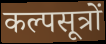
कल्पसूत्रों